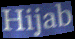
Hijab